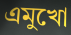
এমুখো